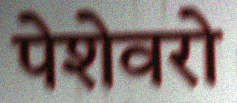
पेशेवरो